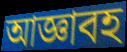
আজ্ঞাবহ